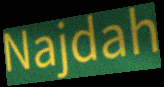
Najdah